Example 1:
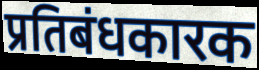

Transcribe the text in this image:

प्रतिबंधकारक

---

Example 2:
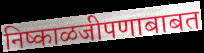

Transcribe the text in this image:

निष्काळजीपणाबाबत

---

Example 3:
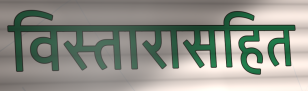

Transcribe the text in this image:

विस्तारासहित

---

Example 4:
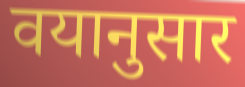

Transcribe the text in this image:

वयानुसार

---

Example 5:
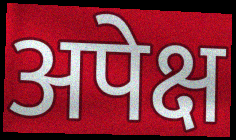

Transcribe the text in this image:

अपेक्ष